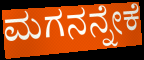
ಮಗನನ್ನೇಕೆ